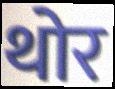
थोर